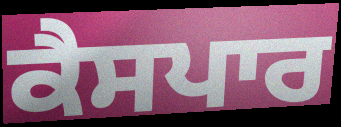
ਕੈਸਪਾਰ